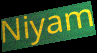
Niyam